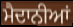
ਮੈਦਾਨੀਆਂ